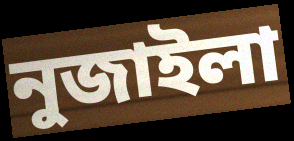
নুজাইলা